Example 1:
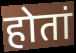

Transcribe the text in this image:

होतां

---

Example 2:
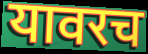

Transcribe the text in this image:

यावरच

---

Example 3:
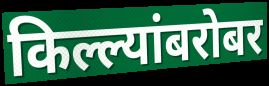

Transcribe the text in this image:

किल्ल्यांबरोबर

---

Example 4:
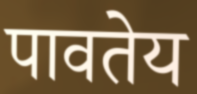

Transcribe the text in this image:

पावतेय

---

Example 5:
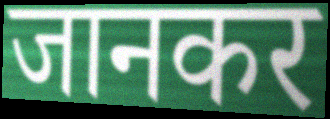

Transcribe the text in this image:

जानकर